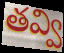
తవ్వి